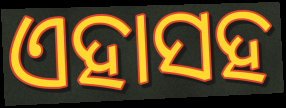
ଏହାସହ